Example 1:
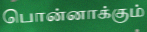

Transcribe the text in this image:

பொன்னாக்கும்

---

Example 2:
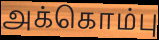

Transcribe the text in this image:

அக்கொம்பு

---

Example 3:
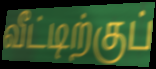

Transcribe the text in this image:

வீட்டிற்குப்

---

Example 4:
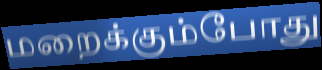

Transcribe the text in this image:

மறைக்கும்போது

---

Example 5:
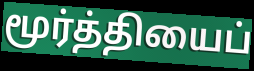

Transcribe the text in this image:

மூர்த்தியைப்